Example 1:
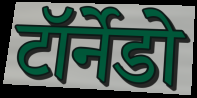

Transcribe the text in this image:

टॉर्नेडो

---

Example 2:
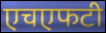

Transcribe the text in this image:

एचएफटी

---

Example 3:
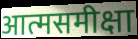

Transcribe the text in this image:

आत्मसमीक्षा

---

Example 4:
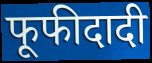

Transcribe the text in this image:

फूफीदादी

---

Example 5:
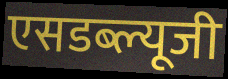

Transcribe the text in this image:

एसडब्ल्यूजी